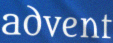
advent